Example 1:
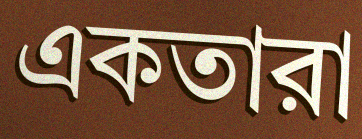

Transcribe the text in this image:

একতারা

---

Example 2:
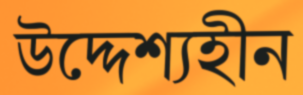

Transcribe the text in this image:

উদ্দেশ্যহীন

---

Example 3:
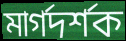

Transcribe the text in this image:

মার্গদর্শক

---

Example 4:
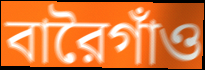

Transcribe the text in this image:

বারৈগাঁও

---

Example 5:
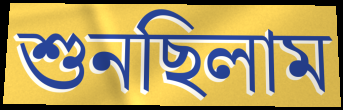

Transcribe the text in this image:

শুনছিলাম